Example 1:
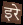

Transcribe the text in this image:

इरे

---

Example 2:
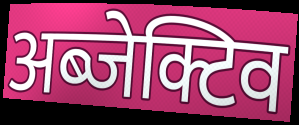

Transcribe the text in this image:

अब्जेक्टिव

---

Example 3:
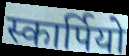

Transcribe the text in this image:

स्कार्पियो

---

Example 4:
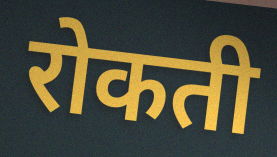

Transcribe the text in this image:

रोकती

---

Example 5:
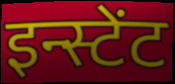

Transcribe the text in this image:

इन्स्टेंट